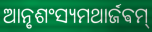
ଆନୃଶଂସ୍ୟମଥାର୍ଜଵମ୍